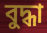
বুদ্ধা